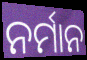
ନର୍ମାନ